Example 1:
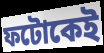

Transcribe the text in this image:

ফটোকেই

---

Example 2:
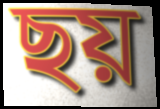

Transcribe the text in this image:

ছয়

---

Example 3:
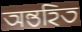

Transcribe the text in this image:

অন্তহিত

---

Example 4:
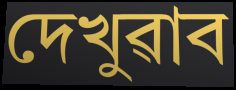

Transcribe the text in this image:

দেখুৱাব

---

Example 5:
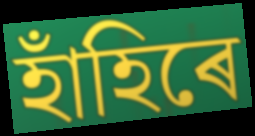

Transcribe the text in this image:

হাঁহিৰে